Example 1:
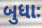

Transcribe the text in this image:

બુધાઃ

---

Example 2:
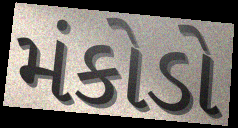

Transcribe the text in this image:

મંકોડો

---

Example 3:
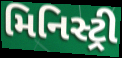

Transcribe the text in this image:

મિનિસ્ટ્રી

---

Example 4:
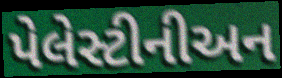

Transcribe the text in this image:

પેલેસ્ટીનીઅન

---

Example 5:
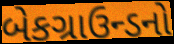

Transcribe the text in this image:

બેકગ્રાઉન્ડનો